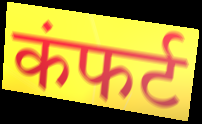
कंफर्ट